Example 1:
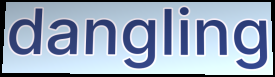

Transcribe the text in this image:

dangling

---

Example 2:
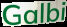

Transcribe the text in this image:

Galbi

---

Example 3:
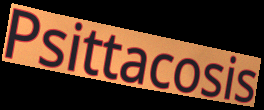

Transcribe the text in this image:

Psittacosis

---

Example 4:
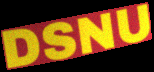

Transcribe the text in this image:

DSNU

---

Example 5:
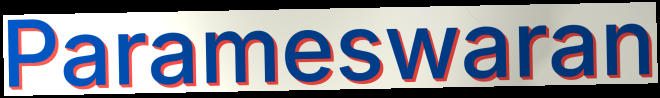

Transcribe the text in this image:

Parameswaran